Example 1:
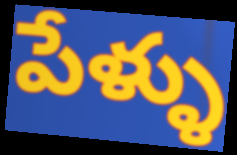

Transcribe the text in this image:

పేళ్ళు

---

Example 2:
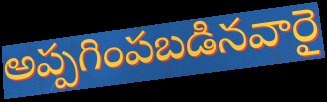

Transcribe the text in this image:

అప్పగింపబడినవారై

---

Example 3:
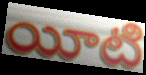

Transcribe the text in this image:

యీటి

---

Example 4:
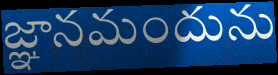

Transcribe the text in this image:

జ్ఞానమందును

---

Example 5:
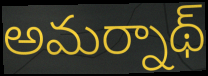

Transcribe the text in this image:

అమర్నాథ్